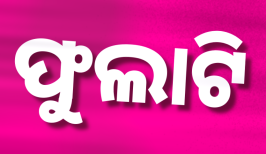
ଫୁଲାଟି